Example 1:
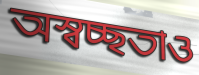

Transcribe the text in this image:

অস্বচ্ছতাও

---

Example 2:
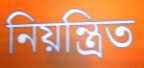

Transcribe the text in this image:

নিয়ন্ত্রিত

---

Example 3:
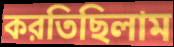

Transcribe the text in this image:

করতিছিলাম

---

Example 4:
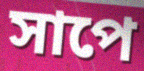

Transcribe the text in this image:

সাপে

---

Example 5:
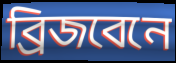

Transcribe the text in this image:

ব্রিজবেনে